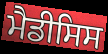
ਮੈਡੀਸਿਸ